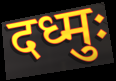
दध्मुः